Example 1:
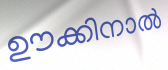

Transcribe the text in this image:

ഊക്കിനാൽ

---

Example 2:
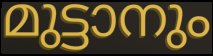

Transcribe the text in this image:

മുട്ടാനും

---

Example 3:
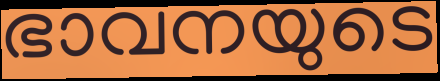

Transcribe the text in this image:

ഭാവനയുടെ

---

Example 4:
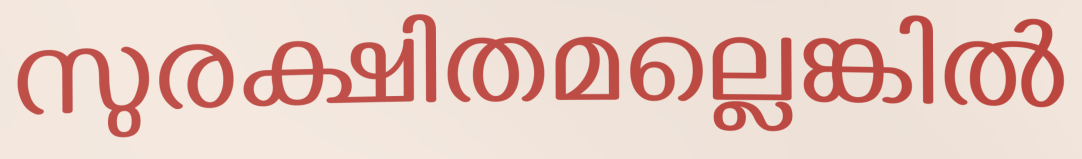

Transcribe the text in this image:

സുരക്ഷിതമല്ലെങ്കിൽ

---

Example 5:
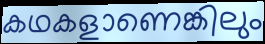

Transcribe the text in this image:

കഥകളാണെങ്കിലും